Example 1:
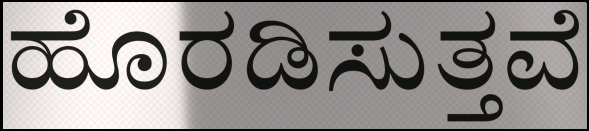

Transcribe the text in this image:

ಹೊರಡಿಸುತ್ತವೆ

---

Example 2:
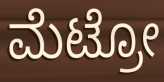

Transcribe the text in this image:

ಮೆಟ್ರೋ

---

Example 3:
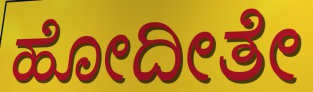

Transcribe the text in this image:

ಹೋದೀತೇ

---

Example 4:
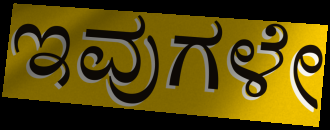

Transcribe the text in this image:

ಇವುಗಳೇ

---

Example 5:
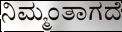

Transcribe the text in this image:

ನಿಮ್ಮಂತಾಗದೆ